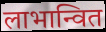
लाभान्वित